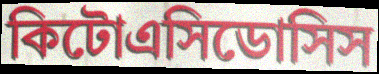
কিটোএসিডোসিস